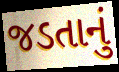
જડતાનું